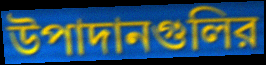
উপাদানগুলির